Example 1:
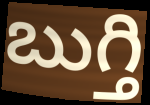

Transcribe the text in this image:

బుగ్తి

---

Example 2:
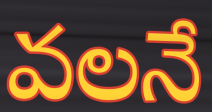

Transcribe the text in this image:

వలనే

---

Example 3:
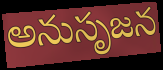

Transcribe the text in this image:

అనుసృజన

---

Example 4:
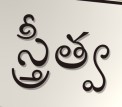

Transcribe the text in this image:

స్త్రీత్వ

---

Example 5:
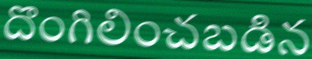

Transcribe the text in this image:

దొంగిలించబడిన